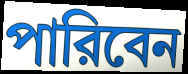
পারিবেন